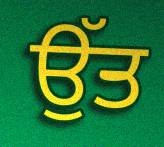
ਉੱਤ